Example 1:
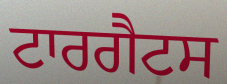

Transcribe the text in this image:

ਟਾਰਗੈਟਸ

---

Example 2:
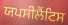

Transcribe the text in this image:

ਯਪਸੀਲੈਂਟਿਸ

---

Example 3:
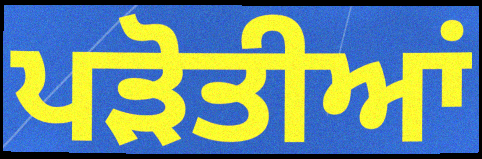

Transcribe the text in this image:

ਪੜੋਤੀਆਂ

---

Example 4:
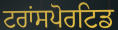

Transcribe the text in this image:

ਟਰਾਂਸਪੋਰਟਿਡ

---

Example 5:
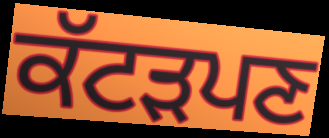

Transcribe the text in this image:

ਕੱਟੜਪਣ